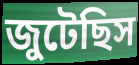
জুটেছিস